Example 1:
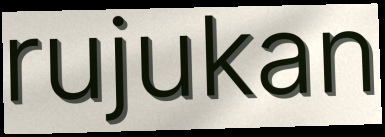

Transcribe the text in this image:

rujukan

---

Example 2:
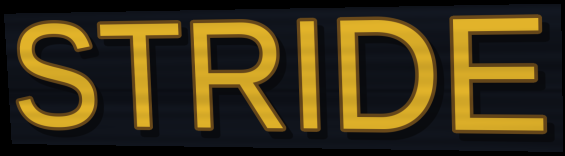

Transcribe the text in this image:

STRIDE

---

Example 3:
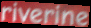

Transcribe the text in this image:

riverine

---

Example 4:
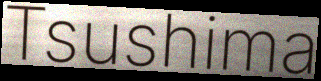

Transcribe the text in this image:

Tsushima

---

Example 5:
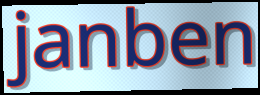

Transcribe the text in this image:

janben